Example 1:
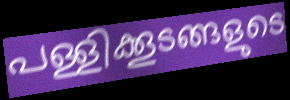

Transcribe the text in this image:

പള്ളിക്കൂടങ്ങളുടെ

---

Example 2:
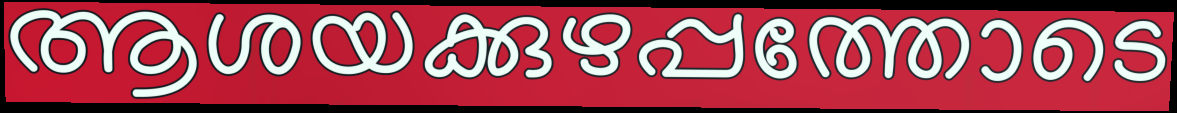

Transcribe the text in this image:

ആശയക്കുഴപ്പത്തോടെ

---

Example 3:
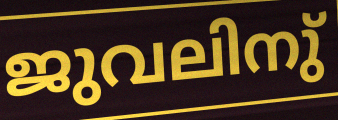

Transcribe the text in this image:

ജുവലിനു്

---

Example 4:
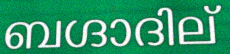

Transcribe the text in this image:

ബഗ്ദാദില്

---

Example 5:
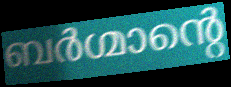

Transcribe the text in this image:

ബർഗ്മാന്റെ